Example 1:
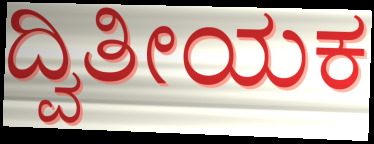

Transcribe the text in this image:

ದ್ವಿತೀಯಕ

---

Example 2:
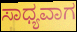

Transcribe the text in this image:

ಸಾಧ್ಯವಾಗ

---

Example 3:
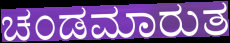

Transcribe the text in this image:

ಚಂಡಮಾರುತ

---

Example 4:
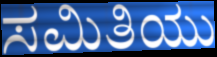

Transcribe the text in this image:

ಸಮಿತಿಯು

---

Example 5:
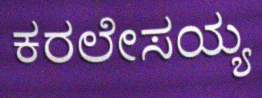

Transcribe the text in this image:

ಕರಲೇಸಯ್ಯ